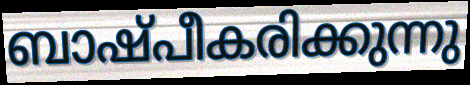
ബാഷ്പീകരിക്കുന്നു